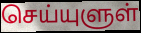
செய்யுளுள்